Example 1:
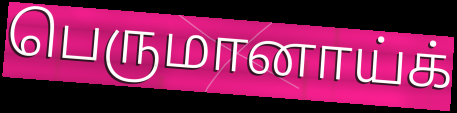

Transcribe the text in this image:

பெருமானாய்க்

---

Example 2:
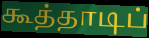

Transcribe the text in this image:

கூத்தாடிப்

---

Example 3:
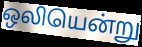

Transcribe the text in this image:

ஒலியென்று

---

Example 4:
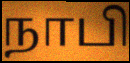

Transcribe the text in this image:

நாபி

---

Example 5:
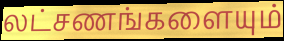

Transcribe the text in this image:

லட்சணங்களையும்